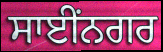
ਸਾਈਂਨਗਰ